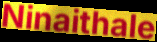
Ninaithale